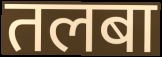
तलबा